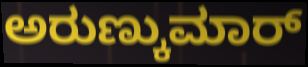
ಅರುಣ್ಕುಮಾರ್